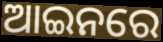
ଆଇନରେ